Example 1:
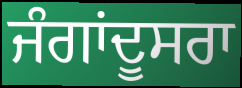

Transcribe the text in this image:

ਜੰਗਾਂਦੂਸਰਾ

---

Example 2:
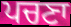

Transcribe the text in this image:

ਪਚਣਾ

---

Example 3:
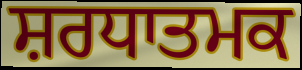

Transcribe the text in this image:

ਸ਼ਰਧਾਤਮਕ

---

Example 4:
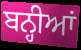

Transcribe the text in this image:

ਬਨ੍ਹੀਆਂ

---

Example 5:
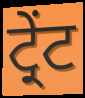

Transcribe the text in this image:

ਟ੍ਰੇਂਟ